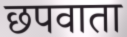
छपवाता